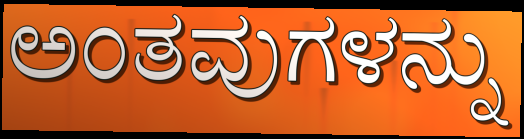
ಅಂತವುಗಳನ್ನು